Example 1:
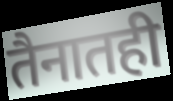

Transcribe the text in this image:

तैनातही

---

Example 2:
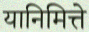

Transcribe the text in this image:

यानिमित्ते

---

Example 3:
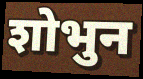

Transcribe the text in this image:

शोभुन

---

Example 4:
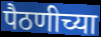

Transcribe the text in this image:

पैठणीच्या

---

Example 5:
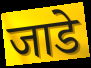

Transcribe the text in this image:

जाडे